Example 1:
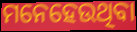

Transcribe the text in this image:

ମନେହେଉଥିବା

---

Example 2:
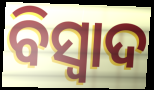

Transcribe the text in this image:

ବିସ୍ଵାଦ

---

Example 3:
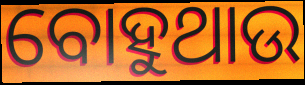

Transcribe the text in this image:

ବୋହୁଥାଉ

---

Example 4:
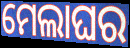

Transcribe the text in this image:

ମେଲାଘର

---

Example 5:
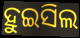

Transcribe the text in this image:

ହୁଇସିଲ